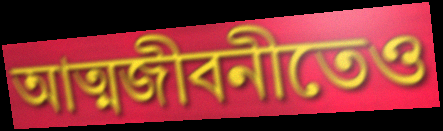
আত্মজীবনীতেও